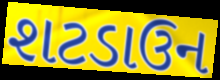
શટડાઉન